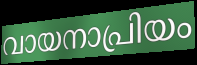
വായനാപ്രിയം